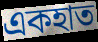
একহাত